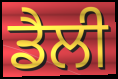
ਡੈਲੀ